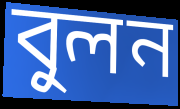
বুলন